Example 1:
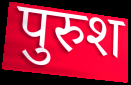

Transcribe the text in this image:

पुरुश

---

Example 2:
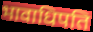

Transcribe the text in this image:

भावाधिपति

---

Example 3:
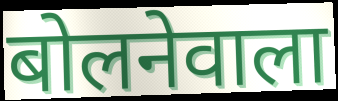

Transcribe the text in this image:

बोलनेवाला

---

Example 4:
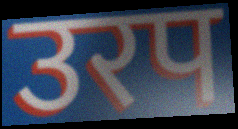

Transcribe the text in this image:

उरप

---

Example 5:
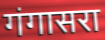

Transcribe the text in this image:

गंगासरा